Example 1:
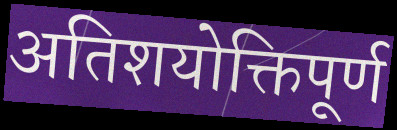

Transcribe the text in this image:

अतिशयोक्तिपूर्ण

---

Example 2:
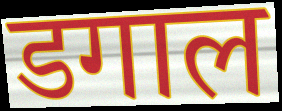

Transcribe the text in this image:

डगाल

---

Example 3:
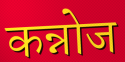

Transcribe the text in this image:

कन्नोज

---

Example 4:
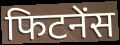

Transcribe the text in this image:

फिटनेंस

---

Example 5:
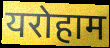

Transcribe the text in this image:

यरोहाम